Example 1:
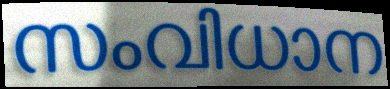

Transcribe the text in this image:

സംവിധാന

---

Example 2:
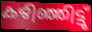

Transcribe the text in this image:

കഴിഞ്ഞിട്ടു്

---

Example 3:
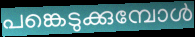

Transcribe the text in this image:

പങ്കെടുക്കുമ്പോൾ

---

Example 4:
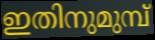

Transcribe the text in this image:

ഇതിനുമുമ്പ്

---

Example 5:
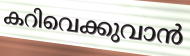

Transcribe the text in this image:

കറിവെക്കുവാൻ